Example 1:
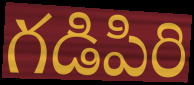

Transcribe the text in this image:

గడిపిరి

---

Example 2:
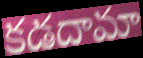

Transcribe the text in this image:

కడదామా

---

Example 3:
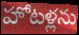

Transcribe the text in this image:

హోటళ్లను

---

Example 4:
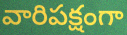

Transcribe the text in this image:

వారిపక్షంగా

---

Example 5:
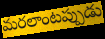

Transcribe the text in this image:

మరలాంటప్పుడు